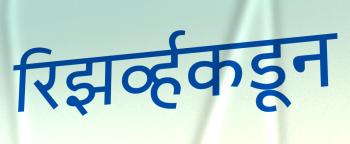
रिझर्व्हकडून